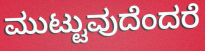
ಮುಟ್ಟುವುದೆಂದರೆ